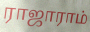
ராஜாராம்